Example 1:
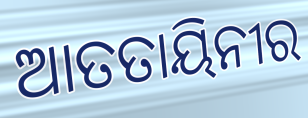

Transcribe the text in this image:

ଆତତାୟିନୀର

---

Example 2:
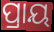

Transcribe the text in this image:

ପ୍ରାୟ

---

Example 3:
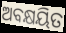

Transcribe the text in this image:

ଅବକ୍ଷୟିତ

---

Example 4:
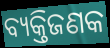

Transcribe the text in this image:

ବ୍ୟକ୍ତିଜଣକ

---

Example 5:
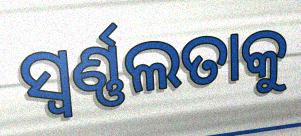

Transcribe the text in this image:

ସ୍ଵର୍ଣ୍ଣଲତାକୁ